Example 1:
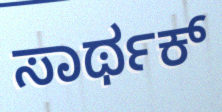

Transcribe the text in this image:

ಸಾರ್ಥಕ್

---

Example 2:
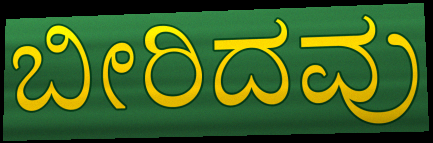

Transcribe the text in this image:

ಬೀರಿದವು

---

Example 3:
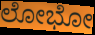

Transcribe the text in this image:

ಲೋಭೋ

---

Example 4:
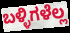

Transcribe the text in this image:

ಬಳ್ಳಿಗಳೆಲ್ಲ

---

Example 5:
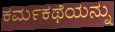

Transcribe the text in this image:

ಕರ್ಮಕಥೆಯನ್ನು